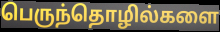
பெருந்தொழில்களை